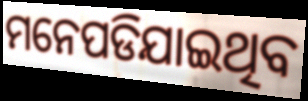
ମନେପଡିଯାଇଥିବ